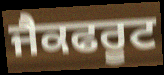
ਜੈਕਫਰੂਟ